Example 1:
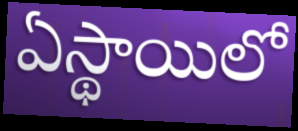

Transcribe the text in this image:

ఏస్థాయిలో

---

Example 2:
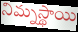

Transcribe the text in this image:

నిమ్నస్థాయి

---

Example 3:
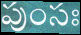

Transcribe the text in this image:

పుంసః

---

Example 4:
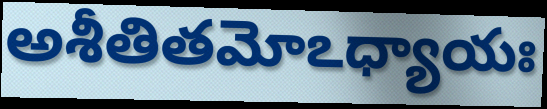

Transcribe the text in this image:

అశీతితమోఽధ్యాయః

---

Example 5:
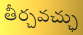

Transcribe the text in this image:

తీర్చవచ్ఛు